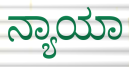
ನ್ಯಾಯಾ